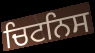
ਚਿਟਨਿਸ